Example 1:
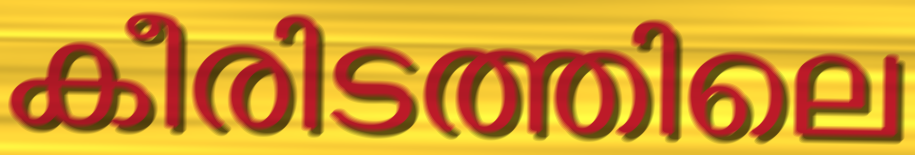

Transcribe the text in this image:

കീരിടത്തിലെ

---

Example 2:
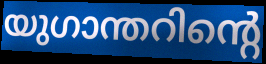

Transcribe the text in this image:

യുഗാന്തറിന്റെ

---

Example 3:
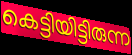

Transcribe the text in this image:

കെട്ടിയിട്ടിരുന്ന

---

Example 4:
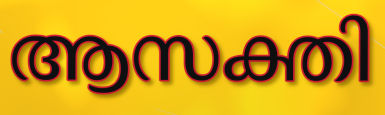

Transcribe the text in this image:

ആസക്തി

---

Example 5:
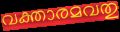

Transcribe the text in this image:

വക്താരമവതു